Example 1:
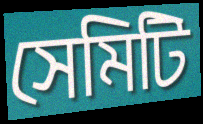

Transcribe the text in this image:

সেমিটি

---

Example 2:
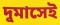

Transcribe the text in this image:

দুমাসেই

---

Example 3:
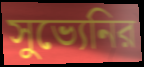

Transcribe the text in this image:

সুভ্যেনির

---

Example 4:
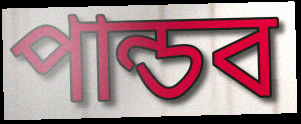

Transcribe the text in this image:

পান্ডব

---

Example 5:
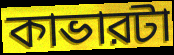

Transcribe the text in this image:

কাভারটা